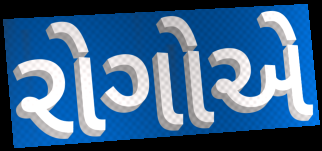
રોગોએ